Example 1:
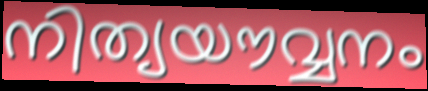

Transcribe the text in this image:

നിത്യയൗവ്വനം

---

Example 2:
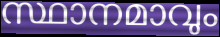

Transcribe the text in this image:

സ്ഥാനമാവും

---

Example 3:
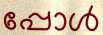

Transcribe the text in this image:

പ്പോൾ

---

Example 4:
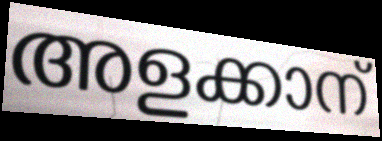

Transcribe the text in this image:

അളക്കാന്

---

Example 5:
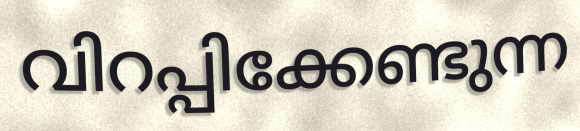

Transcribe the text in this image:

വിറപ്പിക്കേണ്ടുന്ന